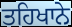
ਤਹਿਖਾਨੇ